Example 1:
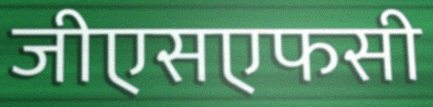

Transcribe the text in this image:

जीएसएफसी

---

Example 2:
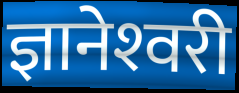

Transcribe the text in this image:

ज्ञानेश्‍वरी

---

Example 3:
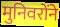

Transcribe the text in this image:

मुनिवरोंने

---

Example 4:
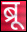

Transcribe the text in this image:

ब्रू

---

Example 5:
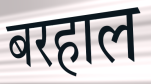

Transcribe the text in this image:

बरहाल